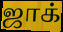
ஜாக்